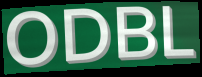
ODBL